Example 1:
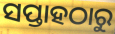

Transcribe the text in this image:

ସପ୍ତାହଠାରୁ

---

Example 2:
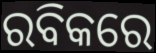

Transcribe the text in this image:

ରବିକରେ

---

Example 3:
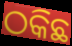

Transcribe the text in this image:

ଠକିଛ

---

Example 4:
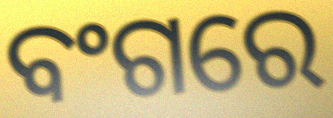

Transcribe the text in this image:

ବଂଗରେ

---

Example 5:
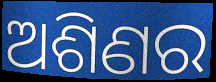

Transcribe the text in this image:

ଅଶିଣର